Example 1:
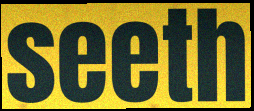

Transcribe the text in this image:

seeth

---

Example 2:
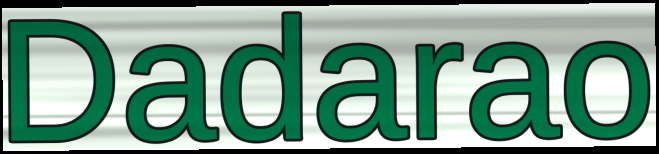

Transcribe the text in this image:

Dadarao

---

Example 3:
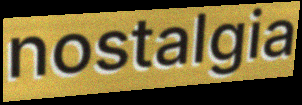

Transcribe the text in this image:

nostalgia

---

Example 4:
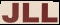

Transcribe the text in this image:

JLL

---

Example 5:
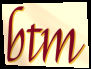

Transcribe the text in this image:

btm